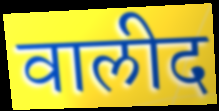
वालीद